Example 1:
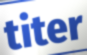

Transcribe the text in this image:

titer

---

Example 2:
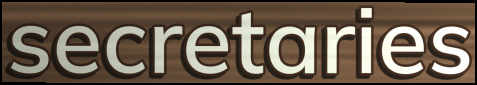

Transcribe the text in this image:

secretaries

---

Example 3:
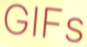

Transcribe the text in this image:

GIFs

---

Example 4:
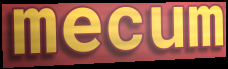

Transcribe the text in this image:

mecum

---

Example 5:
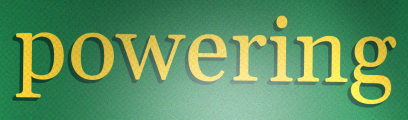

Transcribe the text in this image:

powering